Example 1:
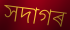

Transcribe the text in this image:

সদাগৰ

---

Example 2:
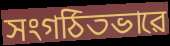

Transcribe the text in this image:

সংগঠিতভাৱে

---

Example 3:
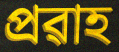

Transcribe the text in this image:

প্ৰৱাহ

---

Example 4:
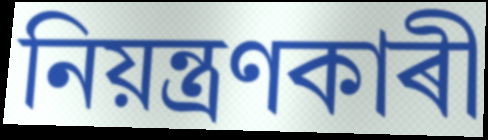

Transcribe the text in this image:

নিয়ন্ত্ৰণকাৰী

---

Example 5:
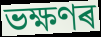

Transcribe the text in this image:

ভক্ষণৰ